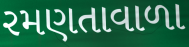
રમણતાવાળા